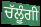
ਚੱਲੂੰਗੀ